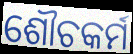
ଶୌଚକର୍ମ